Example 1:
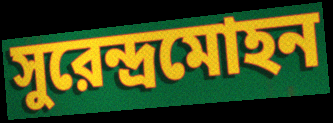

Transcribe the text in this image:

সুরেন্দ্রমোহন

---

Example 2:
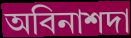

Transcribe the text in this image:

অবিনাশদা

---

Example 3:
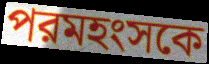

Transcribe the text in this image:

পরমহংসকে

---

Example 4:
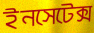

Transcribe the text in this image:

ইনসেটেক্স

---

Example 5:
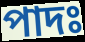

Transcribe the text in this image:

পাদঃ